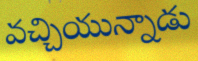
వచ్చియున్నాడు